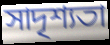
সাদৃশ্যতা